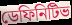
ডেফিনিটিভ